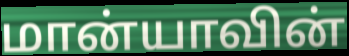
மான்யாவின்